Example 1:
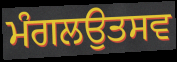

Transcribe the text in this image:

ਮੰਗਲਉਤਸਵ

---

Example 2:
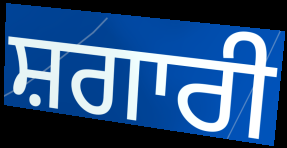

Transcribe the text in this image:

ਸ਼ਗਾਰੀ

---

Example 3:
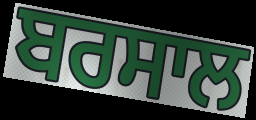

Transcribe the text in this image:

ਬਰਸਾਲ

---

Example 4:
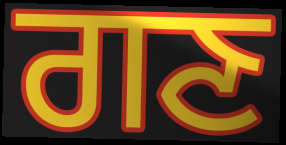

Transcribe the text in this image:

ਗਣ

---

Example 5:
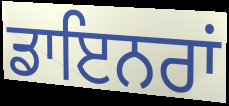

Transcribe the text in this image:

ਡਾਇਨਰਾਂ